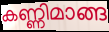
കണ്ണിമാങ്ങ